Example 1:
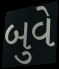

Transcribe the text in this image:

બુવે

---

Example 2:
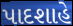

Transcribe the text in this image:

પાદશાહે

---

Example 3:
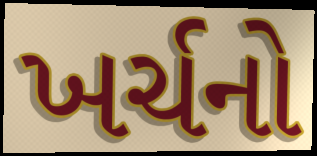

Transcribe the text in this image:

ખર્ચનો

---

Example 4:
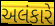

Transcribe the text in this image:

અલંકારે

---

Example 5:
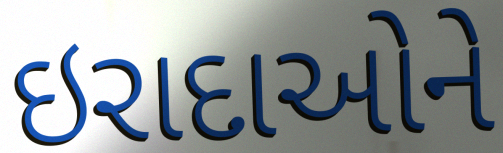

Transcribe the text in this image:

ઇરાદાઓને